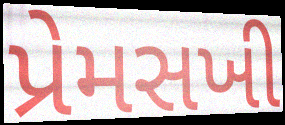
પ્રેમસખી